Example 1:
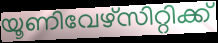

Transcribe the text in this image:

യൂണിവേഴ്സിറ്റിക്ക്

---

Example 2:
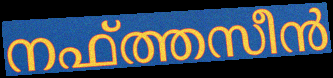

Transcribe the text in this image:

നഫ്ത്തസീൻ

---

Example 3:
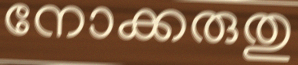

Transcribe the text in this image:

നോക്കരുതു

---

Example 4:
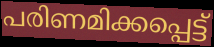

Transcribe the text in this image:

പരിണമിക്കപ്പെട്ട്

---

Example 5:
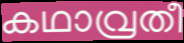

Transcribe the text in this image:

കഥാവ്രതീ